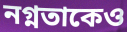
নগ্নতাকেও